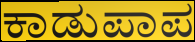
ಕಾಡುಪಾಪ